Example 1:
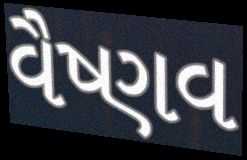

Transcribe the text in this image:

વૈષ્ણવ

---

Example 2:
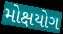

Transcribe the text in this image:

મોક્ષયોગ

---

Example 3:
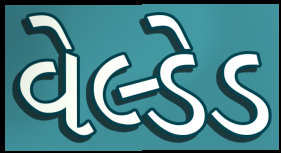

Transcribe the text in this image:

વેલ્ડેડ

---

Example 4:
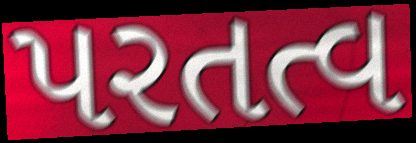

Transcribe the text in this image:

પરતત્વ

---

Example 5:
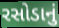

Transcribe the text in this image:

રસોડાનું